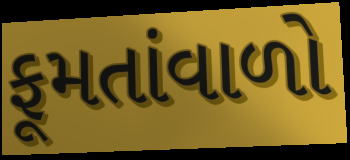
ફૂમતાંવાળો